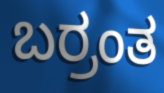
ಬರ್ರಂತ